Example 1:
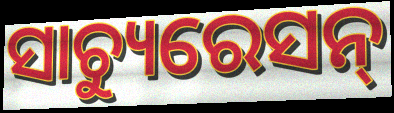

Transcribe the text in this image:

ସାଚ୍ୟୁରେସନ୍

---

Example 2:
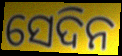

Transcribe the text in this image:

ସେଦିନ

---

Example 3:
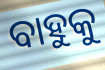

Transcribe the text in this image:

ବାହୁକୁ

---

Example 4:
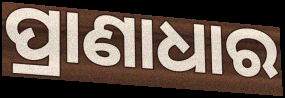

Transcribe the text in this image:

ପ୍ରାଣାଧାର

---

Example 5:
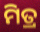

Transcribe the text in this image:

ମିତ୍ର